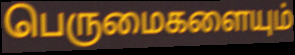
பெருமைகளையும்